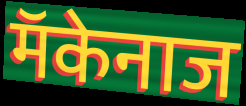
मॅकेनाज